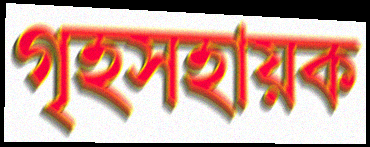
গৃহসহায়ক